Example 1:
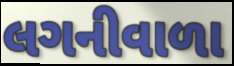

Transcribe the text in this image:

લગનીવાળા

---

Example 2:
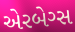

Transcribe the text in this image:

એરબેગ્સ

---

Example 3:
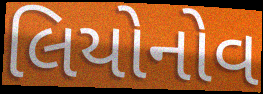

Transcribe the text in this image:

લિયોનોવ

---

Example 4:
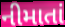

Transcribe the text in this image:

નીમાતાં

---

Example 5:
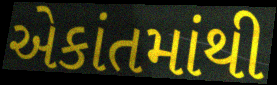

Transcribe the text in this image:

એકાંતમાંથી